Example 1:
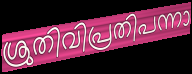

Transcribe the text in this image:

ശ്രുതിവിപ്രതിപന്നാ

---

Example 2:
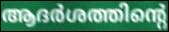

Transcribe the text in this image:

ആദർശത്തിന്റെ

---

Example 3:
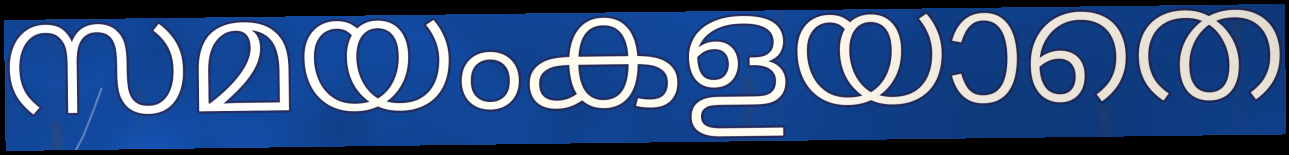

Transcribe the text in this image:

സമയംകളയാതെ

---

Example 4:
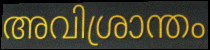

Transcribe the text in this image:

അവിശ്രാന്തം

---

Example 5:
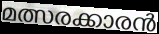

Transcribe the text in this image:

മത്സരക്കാരൻ